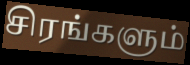
சிரங்களும்